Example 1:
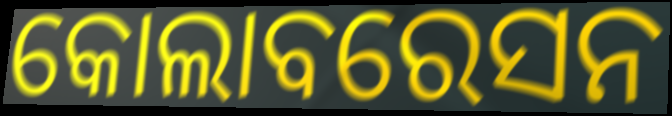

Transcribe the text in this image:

କୋଲାବରେସନ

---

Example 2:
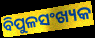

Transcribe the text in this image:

ବିପୁଳସଂଖ୍ୟକ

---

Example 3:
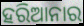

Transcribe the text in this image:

ହରିଆନାର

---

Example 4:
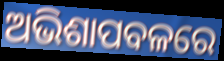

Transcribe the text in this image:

ଅଭିଶାପବଳରେ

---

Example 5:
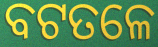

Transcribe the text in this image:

ବଟତଳେ